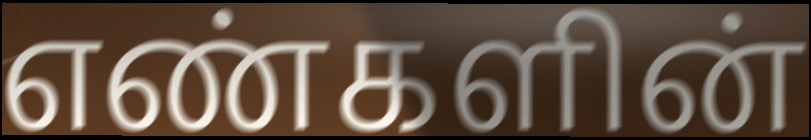
எண்களின்